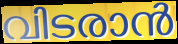
വിടരാൻ